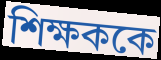
শিক্ষককে